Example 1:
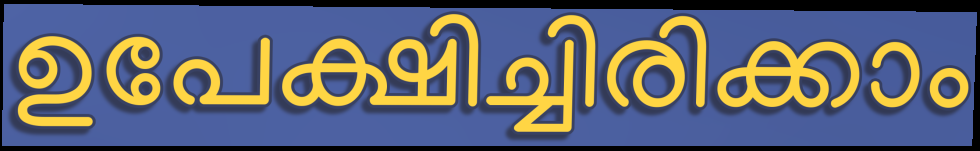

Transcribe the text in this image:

ഉപേക്ഷിച്ചിരിക്കാം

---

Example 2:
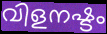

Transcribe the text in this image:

വിളനഷ്ടം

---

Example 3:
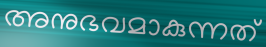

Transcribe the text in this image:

അനുഭവമാകുന്നത്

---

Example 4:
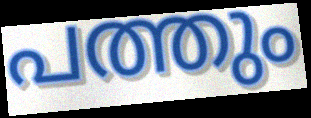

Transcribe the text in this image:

പത്തും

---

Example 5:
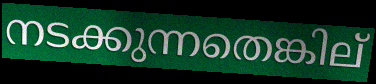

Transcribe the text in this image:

നടക്കുന്നതെങ്കില്